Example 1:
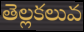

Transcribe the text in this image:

తెల్లకలువ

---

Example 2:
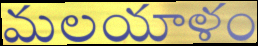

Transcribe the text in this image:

మలయాళం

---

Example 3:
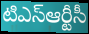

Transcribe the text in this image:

టిఎస్ఆర్టీసీ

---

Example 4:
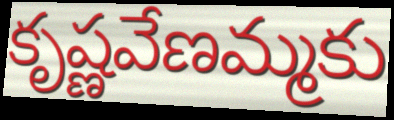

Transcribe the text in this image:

కృష్ణవేణమ్మకు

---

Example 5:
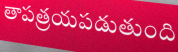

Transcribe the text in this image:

తాపత్రయపడుతుంది